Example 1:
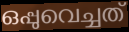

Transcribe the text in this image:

ഒപ്പുവെച്ചത്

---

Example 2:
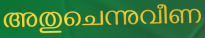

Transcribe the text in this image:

അതുചെന്നുവീണ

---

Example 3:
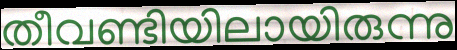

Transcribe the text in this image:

തീവണ്ടിയിലായിരുന്നു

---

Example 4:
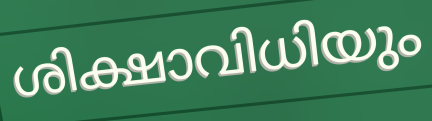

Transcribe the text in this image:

ശിക്ഷാവിധിയും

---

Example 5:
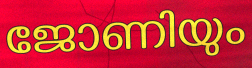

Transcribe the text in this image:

ജോണിയും